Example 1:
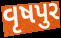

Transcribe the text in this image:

વૃષપુર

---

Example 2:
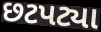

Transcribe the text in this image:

છટપટ્યા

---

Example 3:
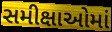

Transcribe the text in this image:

સમીક્ષાઓમાં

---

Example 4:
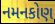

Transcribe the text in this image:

નમનકોણ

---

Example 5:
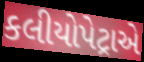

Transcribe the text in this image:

કલીયોપેટ્રાએ